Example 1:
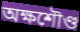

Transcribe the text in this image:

অক্ষশৌণ্ড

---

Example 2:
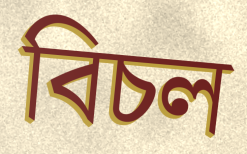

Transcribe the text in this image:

বিচল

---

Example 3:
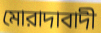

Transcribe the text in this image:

মোরাদাবাদী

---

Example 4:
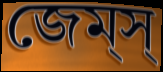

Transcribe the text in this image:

জেম্স্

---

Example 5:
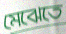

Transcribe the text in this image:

মেঝেতে